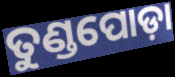
ତୁଣ୍ଡପୋଡ଼ା